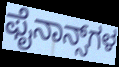
ಫೈನಾನ್ಸ್‌ಗಳ